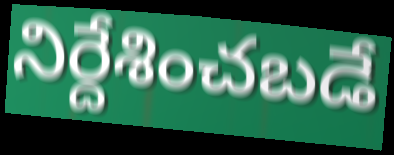
నిర్దేశించబడే